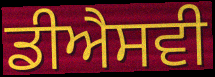
ਡੀਐਸਵੀ